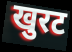
खुरट